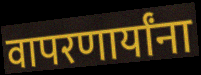
वापरणार्यांना